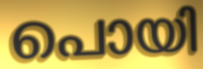
പൊയി